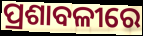
ପ୍ରଶାବଳୀରେ